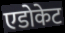
एडोकेट